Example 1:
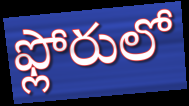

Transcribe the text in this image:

ఫ్లోరులో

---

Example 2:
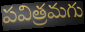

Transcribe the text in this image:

పవిత్రమగు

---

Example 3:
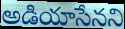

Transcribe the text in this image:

అడియాసేనని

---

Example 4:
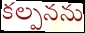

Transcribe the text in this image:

కల్పనను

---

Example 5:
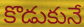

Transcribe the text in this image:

కొడుకునే